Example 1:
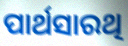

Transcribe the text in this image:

ପାର୍ଥସାରଥି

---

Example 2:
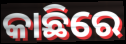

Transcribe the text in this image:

କାଛିରେ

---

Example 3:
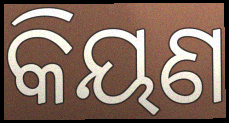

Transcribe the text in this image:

କିୟଣ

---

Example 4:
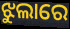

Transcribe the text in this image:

ଝୁଲାରେ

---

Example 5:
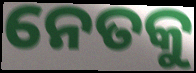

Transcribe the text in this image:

ନେତକୁ